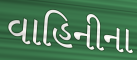
વાહિનીના